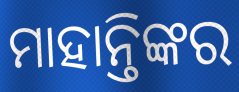
ମାହାନ୍ତିଙ୍କର